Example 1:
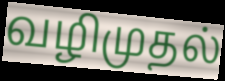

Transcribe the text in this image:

வழிமுதல்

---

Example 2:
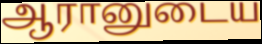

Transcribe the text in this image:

ஆரானுடைய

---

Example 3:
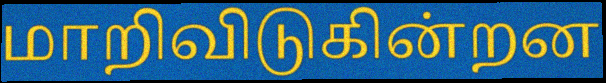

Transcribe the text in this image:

மாறிவிடுகின்றன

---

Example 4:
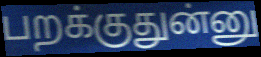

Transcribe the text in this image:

பறக்குதுன்னு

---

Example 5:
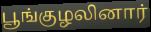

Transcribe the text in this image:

பூங்குழலினார்